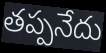
తప్పనేదు